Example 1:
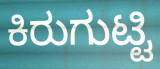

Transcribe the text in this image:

ಕಿರುಗುಟ್ಟಿ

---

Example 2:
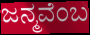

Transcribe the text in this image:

ಜನ್ಮವೆಂಬ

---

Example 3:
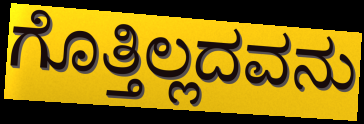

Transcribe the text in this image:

ಗೊತ್ತಿಲ್ಲದವನು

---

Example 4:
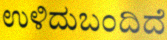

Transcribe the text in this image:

ಉಳಿದುಬಂದಿದೆ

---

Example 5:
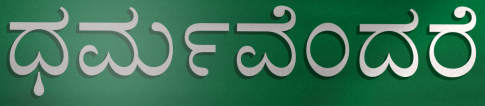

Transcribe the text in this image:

ಧರ್ಮವೆಂದರೆ